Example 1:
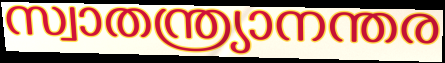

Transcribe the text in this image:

സ്വാതന്ത്ര്യാനന്തര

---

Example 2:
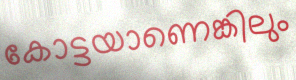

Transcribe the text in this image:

കോട്ടയാണെങ്കിലും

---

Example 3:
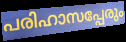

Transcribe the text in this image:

പരിഹാസപ്പേരും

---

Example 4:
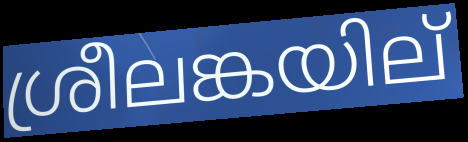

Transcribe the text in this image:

ശ്രീലങ്കയില്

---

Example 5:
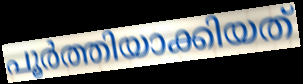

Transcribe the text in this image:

പൂർത്തിയാക്കിയത്